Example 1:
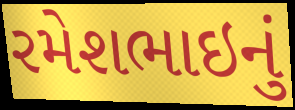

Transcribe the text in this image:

રમેશભાઇનું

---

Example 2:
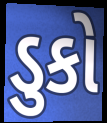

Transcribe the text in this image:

ડુકો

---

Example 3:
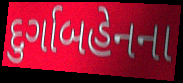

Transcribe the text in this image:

દુર્ગાબહેનના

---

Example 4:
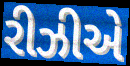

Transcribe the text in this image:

રીઝીએ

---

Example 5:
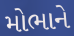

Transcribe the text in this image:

મોભાને